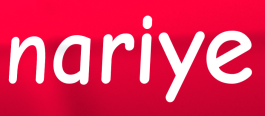
nariye